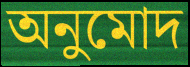
অনুমোদ